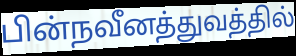
பின்நவீனத்துவத்தில்